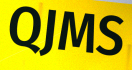
QJMS